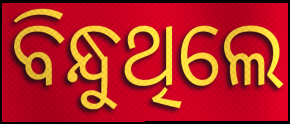
ବିନ୍ଧୁଥିଲେ